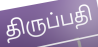
திருப்பதி